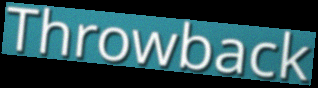
Throwback